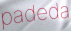
padeda